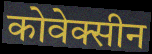
कोवेक्सीन